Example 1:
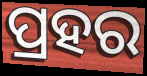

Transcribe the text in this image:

ପ୍ରହର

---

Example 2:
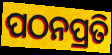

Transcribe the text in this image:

ପଠନପ୍ରତି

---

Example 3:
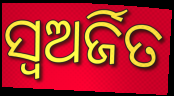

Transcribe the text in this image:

ସ୍ୱଅର୍ଜିତ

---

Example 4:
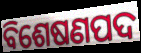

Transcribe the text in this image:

ବିଶେଷଣପଦ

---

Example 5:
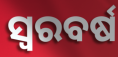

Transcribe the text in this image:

ସ୍ଵରବର୍ଷ